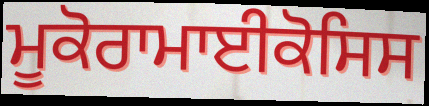
ਮੂਕੋਰਾਮਾਈਕੋਸਿਸ